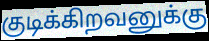
குடிக்கிறவனுக்கு